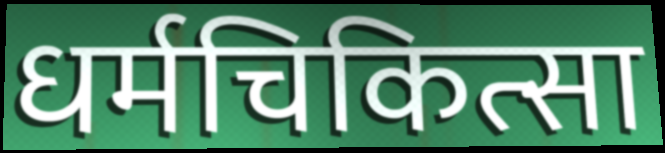
धर्मचिकित्सा